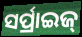
ସର୍ପ୍ରାଇଜ୍